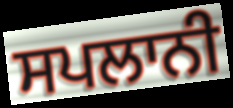
ਸਪਲਾਨੀ